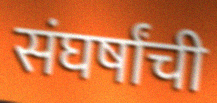
संघर्षांची